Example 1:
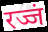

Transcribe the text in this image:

रज्जं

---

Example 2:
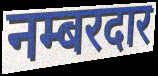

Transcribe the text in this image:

नम्बरदार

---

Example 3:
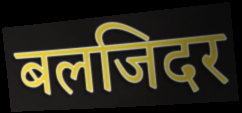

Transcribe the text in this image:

बलजिदर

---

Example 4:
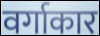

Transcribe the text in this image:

वर्गाकार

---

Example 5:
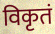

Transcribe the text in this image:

विकृतं